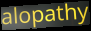
alopathy